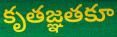
కృతజ్ఞతకూ